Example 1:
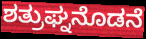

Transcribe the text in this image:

ಶತ್ರುಘ್ನನೊಡನೆ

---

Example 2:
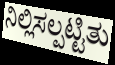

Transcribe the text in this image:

ನಿಲ್ಲಿಸಲ್ಪಟ್ಟಿತು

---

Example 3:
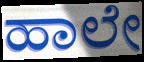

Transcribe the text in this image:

ಹಾಲೇ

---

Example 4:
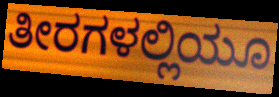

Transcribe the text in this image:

ತೀರಗಳಲ್ಲಿಯೂ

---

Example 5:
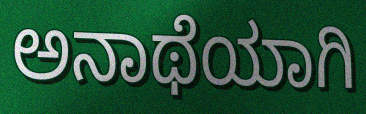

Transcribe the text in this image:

ಅನಾಥೆಯಾಗಿ